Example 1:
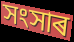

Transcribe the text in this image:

সংসাৰ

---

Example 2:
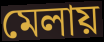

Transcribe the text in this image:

মেলায়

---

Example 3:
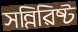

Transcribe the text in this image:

সন্নিৱিষ্ট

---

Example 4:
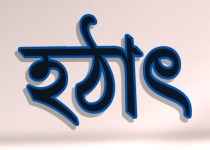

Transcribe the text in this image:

হঠাৎ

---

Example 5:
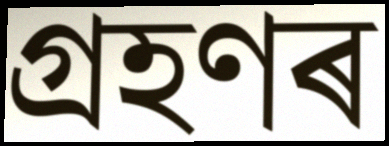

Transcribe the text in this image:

গ্ৰহণৰ